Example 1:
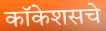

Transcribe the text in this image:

कॉकेशसचे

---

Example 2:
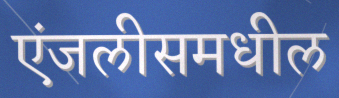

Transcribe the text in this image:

एंजलीसमधील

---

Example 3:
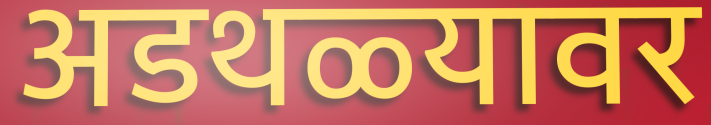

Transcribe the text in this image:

अडथळ्यावर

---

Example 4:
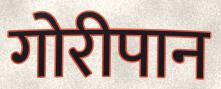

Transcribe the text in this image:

गोरीपान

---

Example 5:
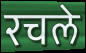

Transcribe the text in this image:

रचले